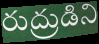
రుద్రుడిని